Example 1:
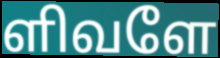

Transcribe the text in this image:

ளிவளே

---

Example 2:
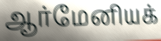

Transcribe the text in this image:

ஆர்மேனியக்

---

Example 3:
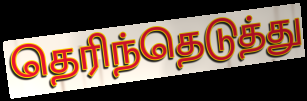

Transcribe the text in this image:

தெரிந்தெடுத்து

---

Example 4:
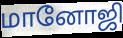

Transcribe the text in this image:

மானோஜி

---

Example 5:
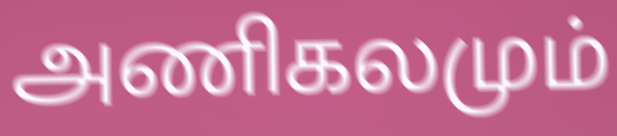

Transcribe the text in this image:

அணிகலமும்